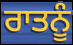
ਰਾਤਨੂੰ